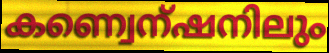
കണ്വെന്ഷനിലും